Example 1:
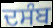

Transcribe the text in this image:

ਦਸੰਬ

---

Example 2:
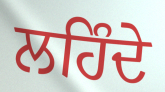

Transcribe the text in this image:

ਲਹਿੰਦੇ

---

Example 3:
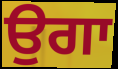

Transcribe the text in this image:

ਉਗਾ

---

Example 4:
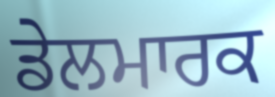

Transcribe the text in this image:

ਡੇਲਮਾਰਕ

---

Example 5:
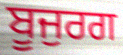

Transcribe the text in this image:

ਬੂਜੁਰਗ